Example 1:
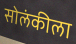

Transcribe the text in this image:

सोलंकीला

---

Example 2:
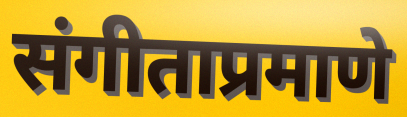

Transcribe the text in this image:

संगीताप्रमाणे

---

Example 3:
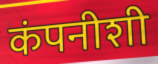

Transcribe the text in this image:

कंपनीशी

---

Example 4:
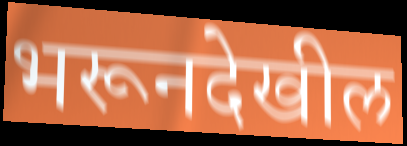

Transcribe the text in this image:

भरूनदेखील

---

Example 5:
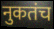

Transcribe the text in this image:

नुकतंच